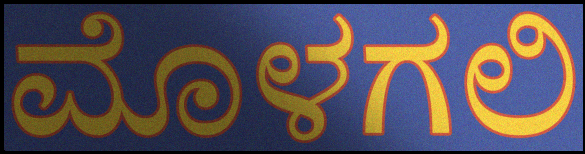
ಮೊಳಗಲಿ